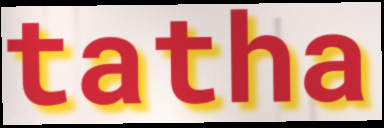
tatha